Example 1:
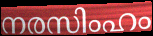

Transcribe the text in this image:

നരസിംഹം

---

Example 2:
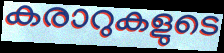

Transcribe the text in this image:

കരാറുകളുടെ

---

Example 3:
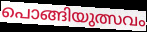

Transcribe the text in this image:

പൊങ്ങിയുത്സവം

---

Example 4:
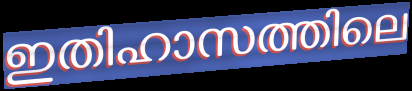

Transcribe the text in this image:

ഇതിഹാസത്തിലെ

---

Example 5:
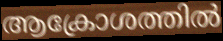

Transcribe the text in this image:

ആക്രോശത്തിൽ